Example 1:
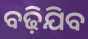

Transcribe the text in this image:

ବଢ଼ିଯିବ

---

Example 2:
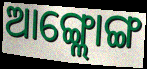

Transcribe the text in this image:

ଆଙ୍ଗ୍ଲୋଙ୍ଗ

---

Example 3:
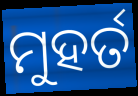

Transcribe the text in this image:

ମୁହର୍ତ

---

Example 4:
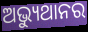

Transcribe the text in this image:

ଅଭ୍ୟୁଥାନର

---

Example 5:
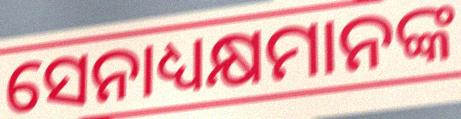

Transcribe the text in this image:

ସେନାଧ୍ୟକ୍ଷମାନଙ୍କ